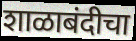
शाळाबंदीचा